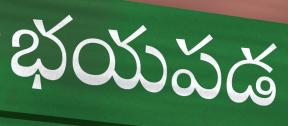
భయపడ